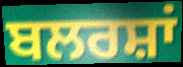
ਬਲਰਸ਼ਾਂ